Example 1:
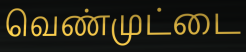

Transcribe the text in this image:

வெண்முட்டை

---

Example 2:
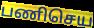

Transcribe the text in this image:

பணிசெய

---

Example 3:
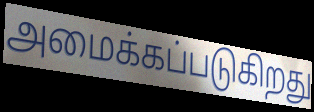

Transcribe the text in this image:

அமைக்கப்படுகிறது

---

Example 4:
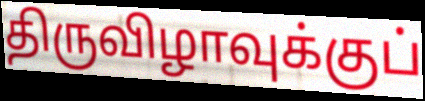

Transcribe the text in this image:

திருவிழாவுக்குப்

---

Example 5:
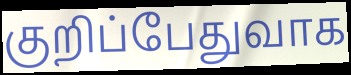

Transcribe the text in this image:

குறிப்பேதுவாக